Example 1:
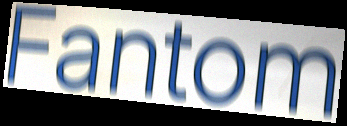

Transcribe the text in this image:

Fantom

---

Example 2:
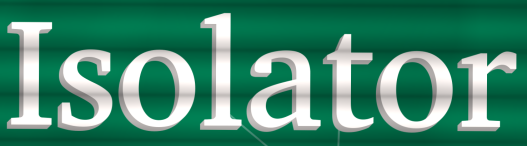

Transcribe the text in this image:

Isolator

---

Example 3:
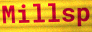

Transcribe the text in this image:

Millsp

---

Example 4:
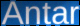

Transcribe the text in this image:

Antar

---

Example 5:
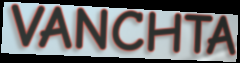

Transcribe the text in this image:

VANCHTA